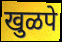
खुळपे